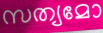
സത്യമോ